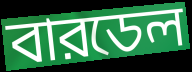
বারডেল